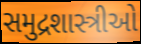
સમુદ્રશાસ્ત્રીઓ